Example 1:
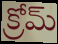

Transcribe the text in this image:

క్రోమ్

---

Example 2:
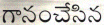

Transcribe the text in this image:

గానంచేసిన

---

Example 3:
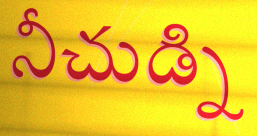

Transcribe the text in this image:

నీచుడ్ని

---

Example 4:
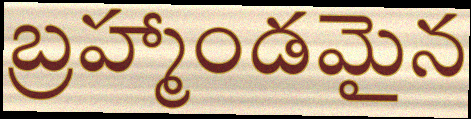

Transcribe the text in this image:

బ్రహ్మాండమైన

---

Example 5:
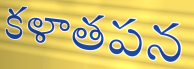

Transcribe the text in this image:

కళాతపన